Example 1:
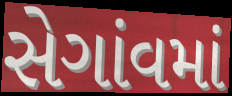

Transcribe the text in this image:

સેગાંવમાં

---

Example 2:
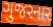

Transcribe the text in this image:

ગુજરનાર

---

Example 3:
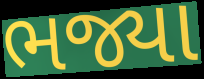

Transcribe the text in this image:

ભજ્યા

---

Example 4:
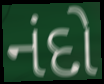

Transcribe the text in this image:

નંદો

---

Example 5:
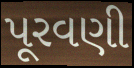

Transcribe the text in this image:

પૂરવણી